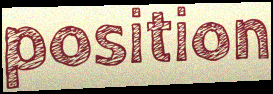
position